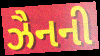
ઝૈનની